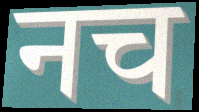
नच